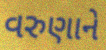
વરુણાને